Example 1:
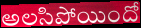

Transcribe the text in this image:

అలసిపోయిందో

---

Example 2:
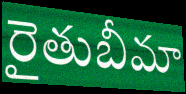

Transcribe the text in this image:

రైతుబీమా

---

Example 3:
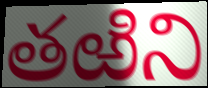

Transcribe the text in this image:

తఱిని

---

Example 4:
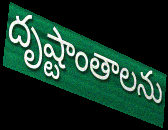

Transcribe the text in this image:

దృష్టాంతాలను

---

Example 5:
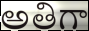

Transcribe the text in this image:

అతిగా